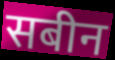
सबीन